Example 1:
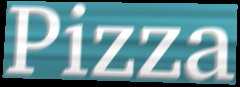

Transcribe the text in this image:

Pizza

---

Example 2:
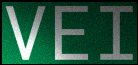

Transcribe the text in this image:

VEI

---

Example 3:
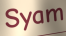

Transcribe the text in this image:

Syam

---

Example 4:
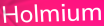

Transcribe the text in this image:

Holmium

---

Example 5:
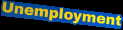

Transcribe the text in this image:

Unemployment